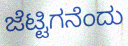
ಜೆಟ್ಟಿಗನೆಂದು